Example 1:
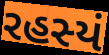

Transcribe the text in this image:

રહસ્યં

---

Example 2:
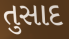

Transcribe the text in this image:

તુસાદ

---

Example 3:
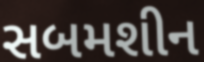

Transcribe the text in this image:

સબમશીન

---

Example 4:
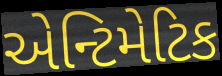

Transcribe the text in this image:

એન્ટિમેટિક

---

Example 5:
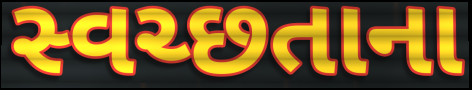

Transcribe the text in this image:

સ્વચ્છતાના